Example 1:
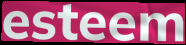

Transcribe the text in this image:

esteem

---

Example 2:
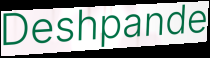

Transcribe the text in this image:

Deshpande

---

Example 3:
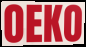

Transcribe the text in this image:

OEKO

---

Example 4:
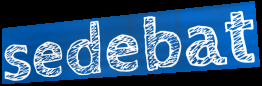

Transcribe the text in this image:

sedebat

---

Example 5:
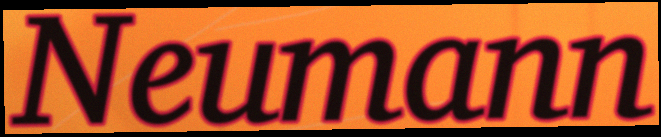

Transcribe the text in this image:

Neumann